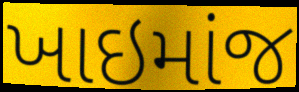
ખાઇમાંજ